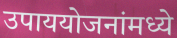
उपाययोजनांमध्ये